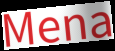
Mena